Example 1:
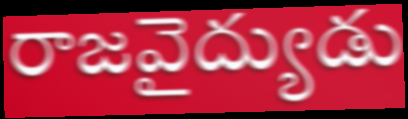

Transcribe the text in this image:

రాజవైద్యుడు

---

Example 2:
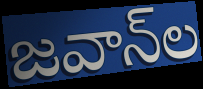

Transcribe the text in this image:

జవాన్‌ల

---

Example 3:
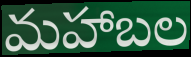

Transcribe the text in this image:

మహాబల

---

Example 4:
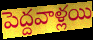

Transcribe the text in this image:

పెద్దవాళ్లయి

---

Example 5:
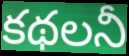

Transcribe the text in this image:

కథలనీ